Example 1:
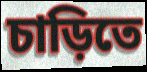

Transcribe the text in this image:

চাড়িতে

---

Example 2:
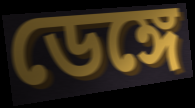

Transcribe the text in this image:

ডেঙ্গে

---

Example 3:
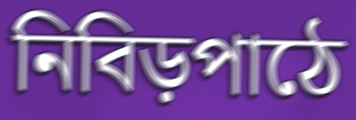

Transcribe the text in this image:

নিবিড়পাঠে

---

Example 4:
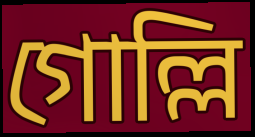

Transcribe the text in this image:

গোল্লি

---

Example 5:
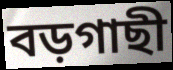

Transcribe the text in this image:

বড়গাছী